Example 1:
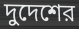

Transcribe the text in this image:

দুদেশের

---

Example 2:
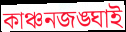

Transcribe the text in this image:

কাঞ্চনজঙ্ঘাই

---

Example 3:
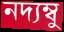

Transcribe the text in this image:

নদ্যম্বু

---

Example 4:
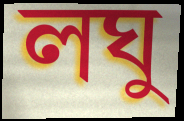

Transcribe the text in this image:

লঘু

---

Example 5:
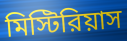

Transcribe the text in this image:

মিস্টিরিয়াস